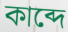
কাব্দে